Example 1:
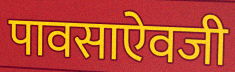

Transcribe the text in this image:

पावसाऐवजी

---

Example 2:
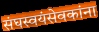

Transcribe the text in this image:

संघस्वयंसेवकांना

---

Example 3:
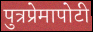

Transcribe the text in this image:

पुत्रप्रेमापोटी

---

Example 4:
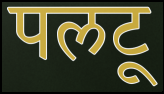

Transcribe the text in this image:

पलटू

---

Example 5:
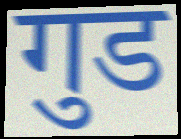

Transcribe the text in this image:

गुड